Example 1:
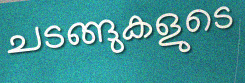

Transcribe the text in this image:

ചടങ്ങുകളുടെ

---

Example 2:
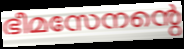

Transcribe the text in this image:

ഭീമസേനന്റെ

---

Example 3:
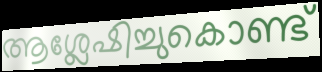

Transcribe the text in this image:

ആശ്ലേഷിച്ചുകൊണ്ട്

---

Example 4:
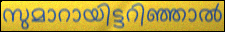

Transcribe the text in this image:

സുമാറായിട്ടറിഞ്ഞാൽ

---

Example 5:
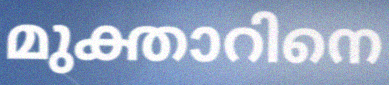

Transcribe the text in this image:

മുക്താറിനെ